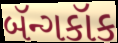
બૅન્ગકૉક